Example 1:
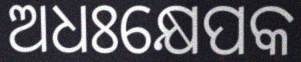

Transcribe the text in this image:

ଅଧଃକ୍ଷେପକ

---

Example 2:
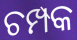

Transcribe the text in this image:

ଚମ୍ପକ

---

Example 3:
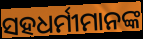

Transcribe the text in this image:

ସହଧର୍ମୀମାନଙ୍କ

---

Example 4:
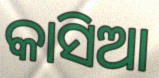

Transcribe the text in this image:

କାସିଆ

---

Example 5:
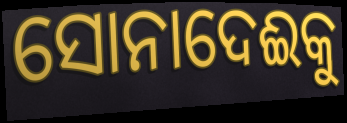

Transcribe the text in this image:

ସୋନାଦେଈକୁ